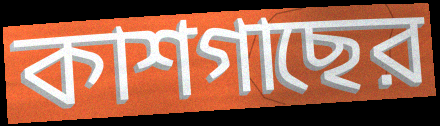
কাশগাছের